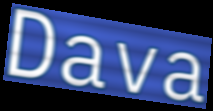
Dava